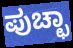
ಪುಚ್ಛಾ